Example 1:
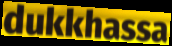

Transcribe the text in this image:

dukkhassa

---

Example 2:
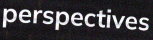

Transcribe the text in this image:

perspectives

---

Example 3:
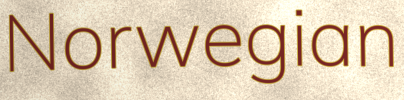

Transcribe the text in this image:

Norwegian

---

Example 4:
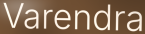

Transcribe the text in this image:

Varendra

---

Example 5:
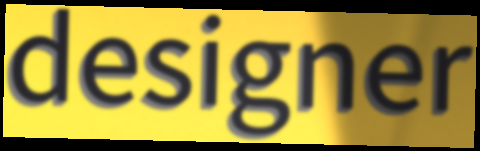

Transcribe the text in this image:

designer